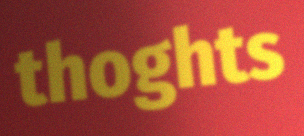
thoghts